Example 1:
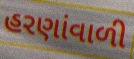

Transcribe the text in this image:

હરણાંવાળી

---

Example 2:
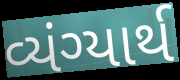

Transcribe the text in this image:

વ્યંગ્યાર્થ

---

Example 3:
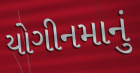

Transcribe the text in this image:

યોગીનમાનું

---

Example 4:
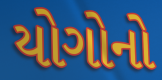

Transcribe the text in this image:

યોગોનો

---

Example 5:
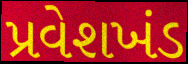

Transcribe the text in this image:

પ્રવેશખંડ